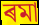
ৰমা